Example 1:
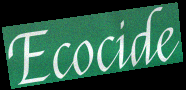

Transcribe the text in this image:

Ecocide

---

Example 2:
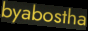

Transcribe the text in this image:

byabostha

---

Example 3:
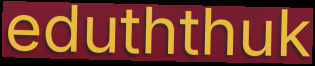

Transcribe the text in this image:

eduththuk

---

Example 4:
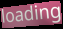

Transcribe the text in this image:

loading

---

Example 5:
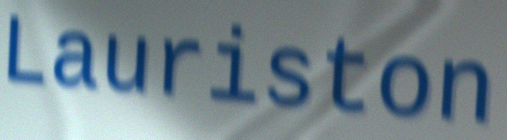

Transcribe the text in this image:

Lauriston